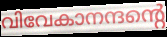
വിവേകാനന്ദന്റെ